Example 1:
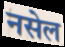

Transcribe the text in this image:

नसेल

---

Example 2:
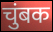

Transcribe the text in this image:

चुंबक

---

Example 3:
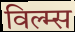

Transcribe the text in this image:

विल्म्स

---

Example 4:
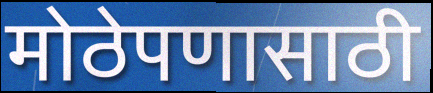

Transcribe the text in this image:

मोठेपणासाठी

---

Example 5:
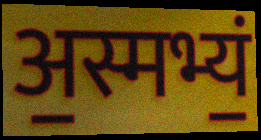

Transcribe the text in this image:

अ॒स्मभ्यं॒